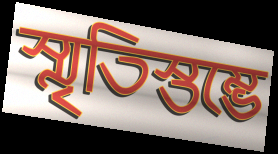
স্মৃতিস্তম্ভে